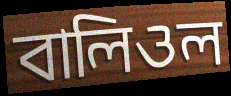
বালিওল